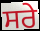
ਸਰੇ